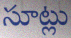
సూట్లు